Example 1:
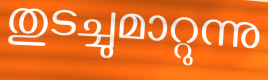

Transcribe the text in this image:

തുടച്ചുമാറ്റുന്നു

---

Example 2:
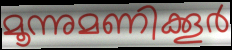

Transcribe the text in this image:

മൂന്നുമണിക്കൂർ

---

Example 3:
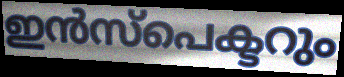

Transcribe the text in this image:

ഇൻസ്പെക്ടറും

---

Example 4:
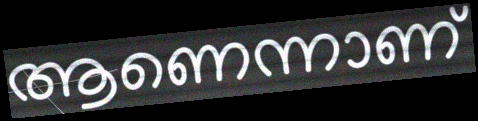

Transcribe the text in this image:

ആണെന്നാണ്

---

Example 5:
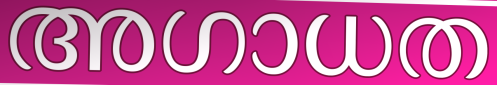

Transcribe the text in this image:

അഗാധത